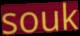
souk